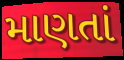
માણતાં